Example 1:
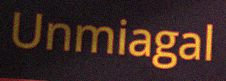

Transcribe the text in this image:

Unmiagal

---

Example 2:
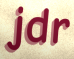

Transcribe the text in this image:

jdr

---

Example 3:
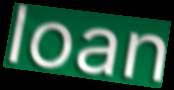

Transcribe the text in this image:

Ioan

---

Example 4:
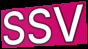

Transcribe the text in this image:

SSV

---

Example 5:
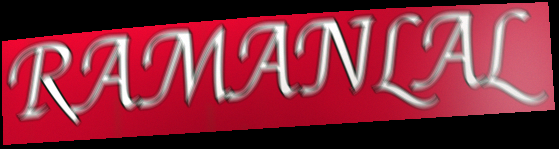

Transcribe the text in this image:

RAMANLAL